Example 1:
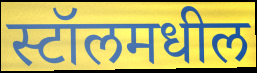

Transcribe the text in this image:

स्टॉलमधील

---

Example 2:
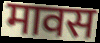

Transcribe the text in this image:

मावस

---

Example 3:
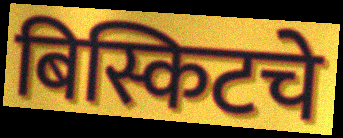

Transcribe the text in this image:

बिस्किटचे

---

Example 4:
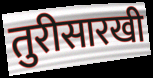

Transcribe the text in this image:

तुरीसारखी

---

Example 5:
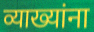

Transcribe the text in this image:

व्याख्यांना